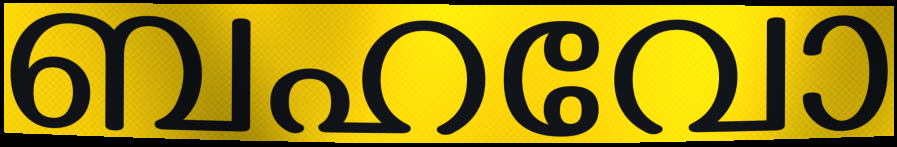
ബഹവോ